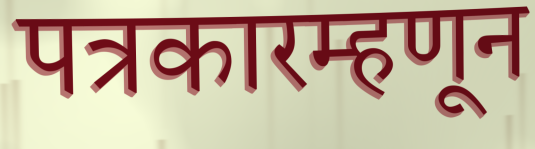
पत्रकारम्हणून